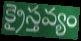
క్రైస్తవ్యం